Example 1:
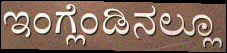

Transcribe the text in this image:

ಇಂಗ್ಲೆಂಡಿನಲ್ಲೂ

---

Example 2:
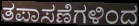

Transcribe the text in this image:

ತಪಾಸಣೆಗಳಿಂದ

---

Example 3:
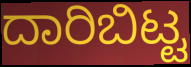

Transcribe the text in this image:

ದಾರಿಬಿಟ್ಟ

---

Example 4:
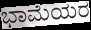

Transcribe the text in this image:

ಭಾಮೆಯರ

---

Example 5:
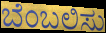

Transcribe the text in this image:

ಬೆಂಬಲಿಸು